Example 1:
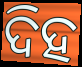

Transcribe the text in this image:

ଦିହ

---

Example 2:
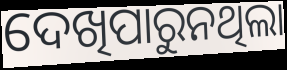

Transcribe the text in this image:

ଦେଖିପାରୁନଥିଲା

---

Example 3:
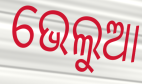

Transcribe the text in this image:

ଭେଲୁଆ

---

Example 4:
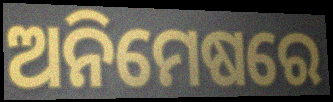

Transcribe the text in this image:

ଅନିମେଷରେ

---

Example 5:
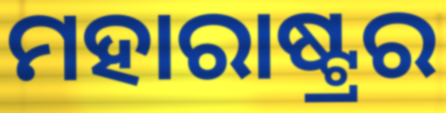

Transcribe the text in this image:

ମହାରାଷ୍ଟ୍ରର